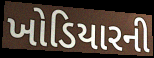
ખોડિયારની